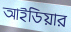
আইডিয়ার